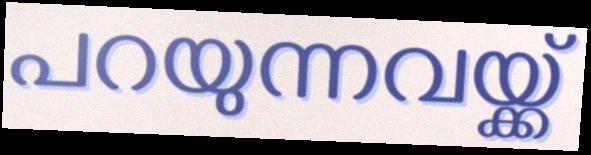
പറയുന്നവയ്ക്ക്